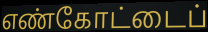
எண்கோட்டைப்